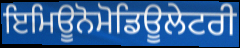
ਇਮਿਊਨੋਮੋਡਿਊਲੇਟਰੀ